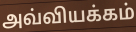
அவ்வியக்கம்